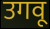
उगवू